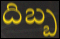
దిబ్బ